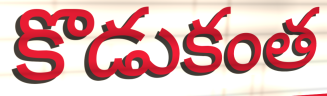
కొడుకంత